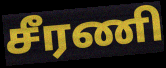
சீரணி